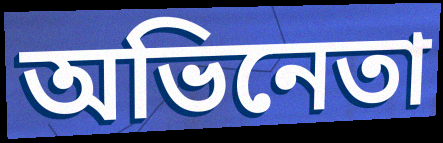
অভিনেতা